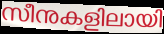
സീനുകളിലായി